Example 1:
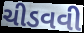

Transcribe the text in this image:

ચીડવવી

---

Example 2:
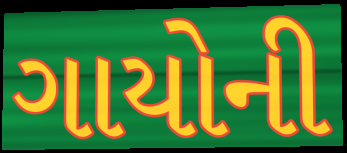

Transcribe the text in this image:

ગાયોની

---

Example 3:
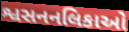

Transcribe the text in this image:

શ્વસનનલિકાઓ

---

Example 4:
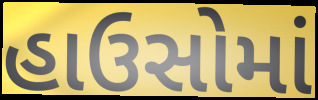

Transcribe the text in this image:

હાઉસોમાં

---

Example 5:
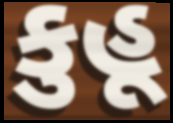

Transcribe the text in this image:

કુહૂ